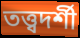
তত্ত্বদর্শী